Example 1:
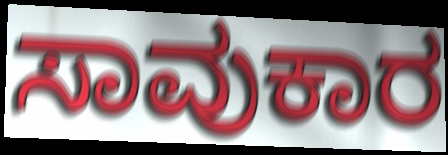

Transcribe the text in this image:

ಸಾವುಕಾರ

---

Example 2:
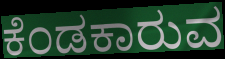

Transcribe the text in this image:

ಕೆಂಡಕಾರುವ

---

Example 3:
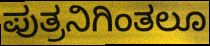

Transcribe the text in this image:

ಪುತ್ರನಿಗಿಂತಲೂ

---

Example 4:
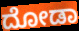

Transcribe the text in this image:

ದೋಡಾ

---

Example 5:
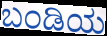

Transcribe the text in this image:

ಬಂಡಿಯ